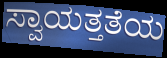
ಸ್ವಾಯತ್ತತೆಯ